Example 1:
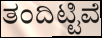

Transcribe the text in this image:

ತಂದಿಟ್ಟಿವೆ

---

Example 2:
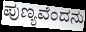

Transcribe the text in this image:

ಪುಣ್ಯವೆಂದನು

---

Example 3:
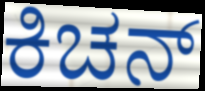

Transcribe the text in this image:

ಕಿಚನ್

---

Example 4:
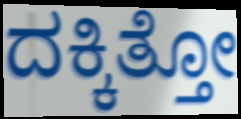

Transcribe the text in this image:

ದಕ್ಕಿತ್ತೋ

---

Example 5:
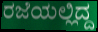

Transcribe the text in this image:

ರಜೆಯಲ್ಲಿದ್ದ